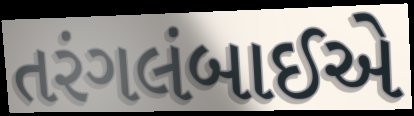
તરંગલંબાઈએ